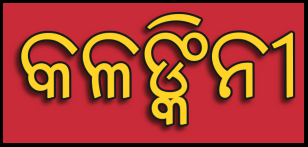
କଳଙ୍କିନୀ